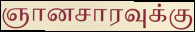
ஞானசாரவுக்கு